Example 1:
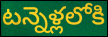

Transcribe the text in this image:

టన్నెళ్లలోకి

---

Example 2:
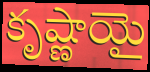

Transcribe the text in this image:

కృష్ణాయై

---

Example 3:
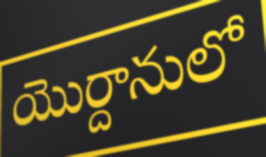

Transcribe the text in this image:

యొర్దానులో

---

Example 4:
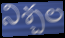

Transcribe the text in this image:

నిశ్చల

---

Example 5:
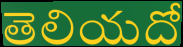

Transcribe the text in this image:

తెలియదో